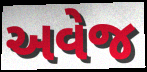
અવેજ